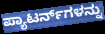
ಪ್ಯಾಟರ್ನ್‌ಗಳನ್ನು